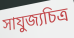
সাযুজ্যচিত্র